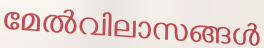
മേൽവിലാസങ്ങൾ